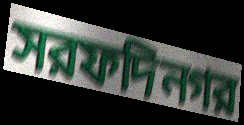
সরফদিনগর